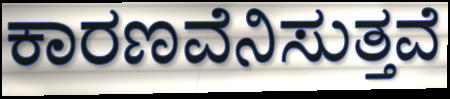
ಕಾರಣವೆನಿಸುತ್ತವೆ